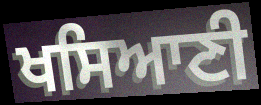
ਖਸਿਆਣੀ